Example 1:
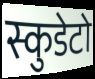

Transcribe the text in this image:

स्कुडेटो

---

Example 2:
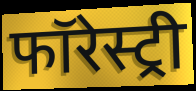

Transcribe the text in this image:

फॉरेस्ट्री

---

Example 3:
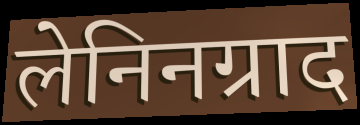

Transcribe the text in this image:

लेनिनग्राद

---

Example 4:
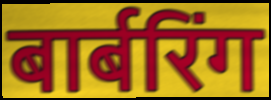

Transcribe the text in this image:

बार्बरिंग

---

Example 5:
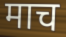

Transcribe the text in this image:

माच